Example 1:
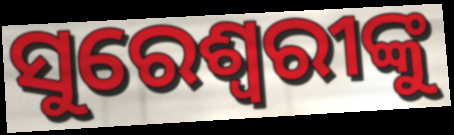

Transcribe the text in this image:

ସୁରେଶ୍ୱରୀଙ୍କୁ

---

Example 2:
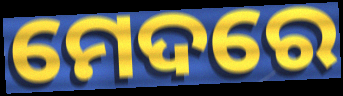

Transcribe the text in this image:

ମେଦରେ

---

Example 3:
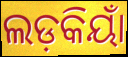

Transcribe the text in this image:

ଲଡ଼କିୟାଁ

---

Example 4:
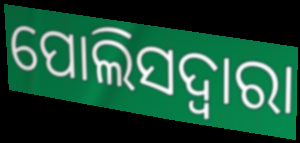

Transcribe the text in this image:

ପୋଲିସଦ୍ୱାରା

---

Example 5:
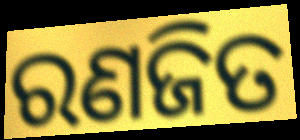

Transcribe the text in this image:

ରଣଜିତ